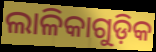
ଲାଳିକାଗୁଡ଼ିକ